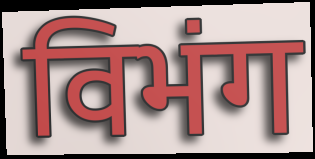
विभंग